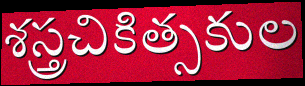
శస్త్రచికిత్సకుల